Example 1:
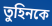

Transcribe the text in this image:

তুহিনকে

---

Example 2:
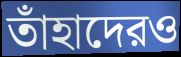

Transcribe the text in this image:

তাঁহাদেরও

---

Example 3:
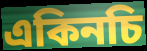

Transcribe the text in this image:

একিনচি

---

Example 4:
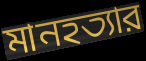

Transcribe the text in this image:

মানহত্যার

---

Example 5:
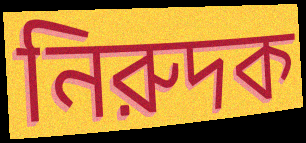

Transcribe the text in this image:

নিরুদক